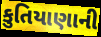
કુતિયાણાની